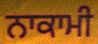
ਨਾਕਾਮੀ